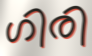
ഗിരി